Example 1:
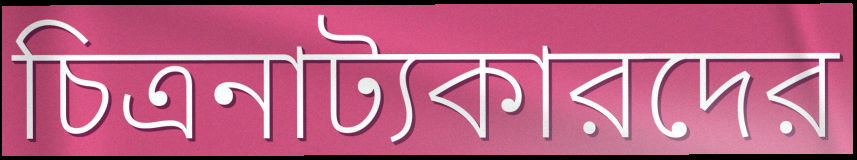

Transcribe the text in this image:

চিত্রনাট্যকারদের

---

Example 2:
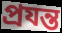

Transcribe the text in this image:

প্রযন্ত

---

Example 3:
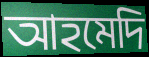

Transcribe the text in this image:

আহমেদি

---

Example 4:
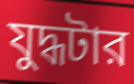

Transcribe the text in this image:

যুদ্ধটার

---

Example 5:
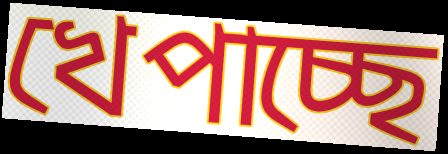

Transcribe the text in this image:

খেপাচ্ছে